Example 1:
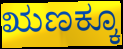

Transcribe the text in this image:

ಋಣಕ್ಕೂ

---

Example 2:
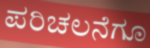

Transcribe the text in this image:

ಪರಿಚಲನೆಗೂ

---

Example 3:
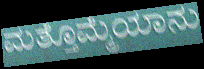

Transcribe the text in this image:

ಮತ್ತೊಮ್ಮೆಯಾನು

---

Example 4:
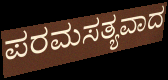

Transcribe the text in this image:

ಪರಮಸತ್ಯವಾದ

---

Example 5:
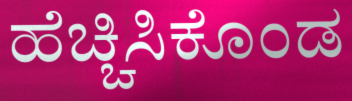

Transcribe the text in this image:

ಹೆಚ್ಚಿಸಿಕೊಂಡ